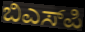
ಬಿಎಸ್‌ಪಿ